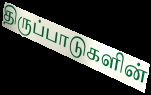
திருப்பாடுகளின்